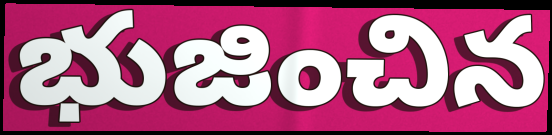
భుజించిన